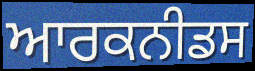
ਆਰਕਨੀਡਸ